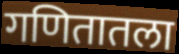
गणितातला